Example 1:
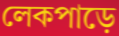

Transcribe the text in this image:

লেকপাড়ে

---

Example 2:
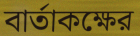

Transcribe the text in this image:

বার্তাকক্ষের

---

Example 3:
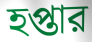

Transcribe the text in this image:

হপ্তার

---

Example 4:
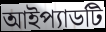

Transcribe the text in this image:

আইপ্যাডটি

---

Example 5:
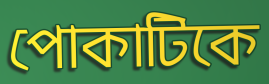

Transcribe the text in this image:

পোকাটিকে